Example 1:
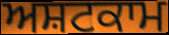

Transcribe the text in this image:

ਅਸ਼ਟਕਾਮ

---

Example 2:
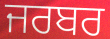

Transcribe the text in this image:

ਜਰਬਰ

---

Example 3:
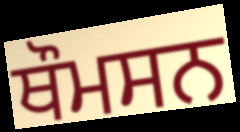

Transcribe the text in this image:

ਥੌਮਸਨ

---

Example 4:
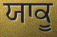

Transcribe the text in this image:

ਯਾਕੂ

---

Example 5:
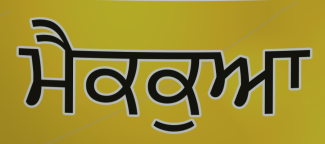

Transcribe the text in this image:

ਮੈਕਕੁਆ